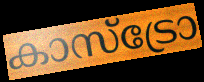
കാസ്ട്രോ